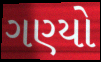
ગણ્યો